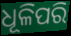
ଧୂଳିପରି